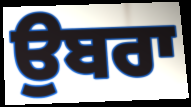
ਉਬਰਾ